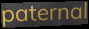
paternal